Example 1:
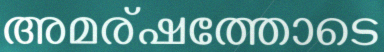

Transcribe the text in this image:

അമര്ഷത്തോടെ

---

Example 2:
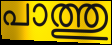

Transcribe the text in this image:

പാത്തു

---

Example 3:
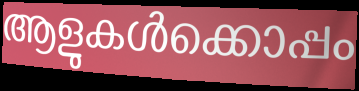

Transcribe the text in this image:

ആളുകൾക്കൊപ്പം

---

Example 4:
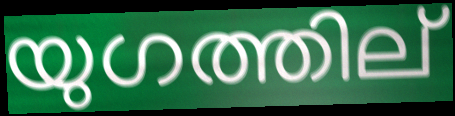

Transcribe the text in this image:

യുഗത്തില്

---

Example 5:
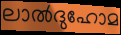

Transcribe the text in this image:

ലാൽദുഹോമ